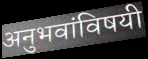
अनुभवांविषयी